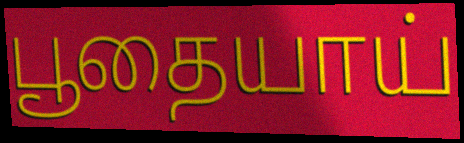
பூதையாய்